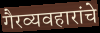
गैरव्यवहारांचे